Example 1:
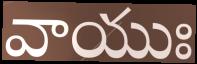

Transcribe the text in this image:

వాయుః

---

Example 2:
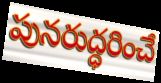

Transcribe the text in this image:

పునరుద్ధరించే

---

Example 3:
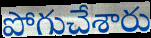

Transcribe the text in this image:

పోగుచేశారు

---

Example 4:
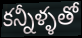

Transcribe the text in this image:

కన్నీళ్ళతో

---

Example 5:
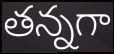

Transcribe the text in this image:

తన్నగా